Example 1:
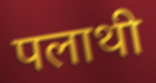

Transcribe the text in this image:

पलाथी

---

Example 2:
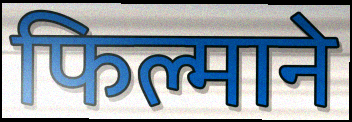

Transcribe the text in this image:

फिल्‍माने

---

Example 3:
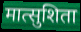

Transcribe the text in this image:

मात्सुशिता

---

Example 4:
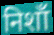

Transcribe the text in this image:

निशाँ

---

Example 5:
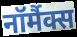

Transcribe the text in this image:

नॉर्मैक्स